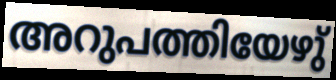
അറുപത്തിയേഴു്